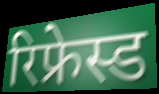
रिफ्रेस्ड